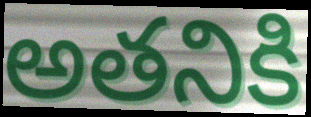
అతనికి